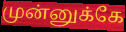
முன்னுக்கே